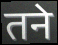
तने